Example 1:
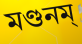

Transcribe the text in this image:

মণ্ডনম্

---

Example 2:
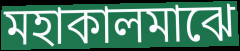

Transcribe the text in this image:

মহাকালমাঝে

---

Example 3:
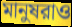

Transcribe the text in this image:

মানুষরাও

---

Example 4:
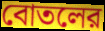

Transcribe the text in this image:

বোতলের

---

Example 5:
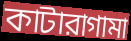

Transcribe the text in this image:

কাটারাগামা